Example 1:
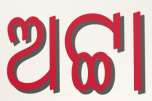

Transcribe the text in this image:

ଅଟ୍ଟା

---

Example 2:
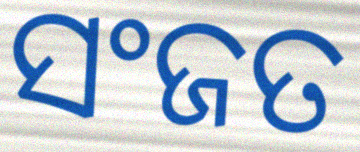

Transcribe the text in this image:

ସଂଜତ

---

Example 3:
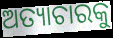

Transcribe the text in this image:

ଅତ୍ୟାଚାରକୁ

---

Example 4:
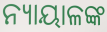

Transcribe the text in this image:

ନ୍ୟାୟାଳଙ୍କ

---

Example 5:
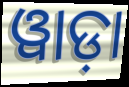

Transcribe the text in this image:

ୱାଡ଼ା